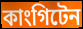
কাংগিটেন